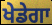
ਖੇਡੇਗਾ